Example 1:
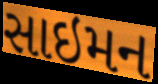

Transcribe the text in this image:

સાઇમન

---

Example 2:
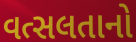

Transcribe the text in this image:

વત્સલતાનો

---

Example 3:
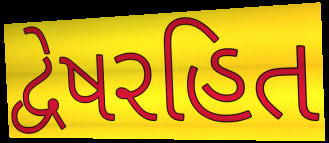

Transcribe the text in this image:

દ્વેષરહિત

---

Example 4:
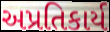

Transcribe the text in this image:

અપ્રતિકાર્ય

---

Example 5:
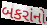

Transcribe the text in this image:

બકરાંનો